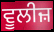
ਵੂਲੀਜ਼